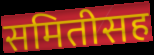
समितीसह